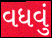
વધવું